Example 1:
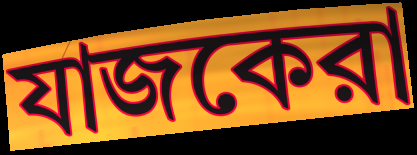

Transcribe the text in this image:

যাজকেরা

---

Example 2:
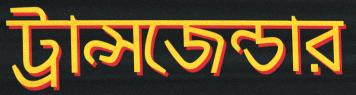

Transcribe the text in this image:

ট্রান্সজেন্ডার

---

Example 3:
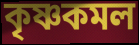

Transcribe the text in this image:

কৃষ্ণকমল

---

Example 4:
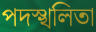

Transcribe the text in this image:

পদস্খলিতা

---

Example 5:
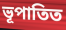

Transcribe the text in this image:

ভূপাতিত